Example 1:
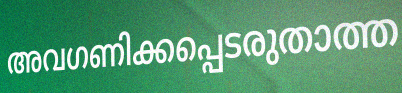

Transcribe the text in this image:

അവഗണിക്കപ്പെടരുതാത്ത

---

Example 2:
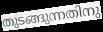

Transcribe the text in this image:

തുടങ്ങുന്നതിനു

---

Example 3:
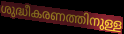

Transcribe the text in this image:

ശുദ്ധീകരണത്തിനുള്ള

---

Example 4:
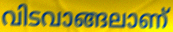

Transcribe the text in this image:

വിടവാങ്ങലാണ്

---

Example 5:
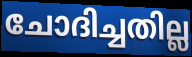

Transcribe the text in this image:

ചോദിച്ചതില്ല